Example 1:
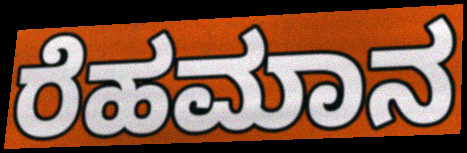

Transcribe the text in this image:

ರೆಹಮಾನ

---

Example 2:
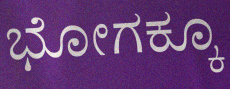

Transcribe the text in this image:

ಭೋಗಕ್ಕೂ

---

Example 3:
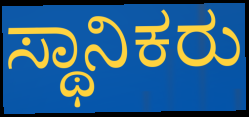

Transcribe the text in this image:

ಸ್ಥಾನಿಕರು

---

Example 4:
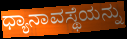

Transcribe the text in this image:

ಧ್ಯಾನಾವಸ್ಥೆಯನ್ನು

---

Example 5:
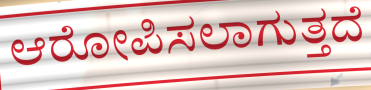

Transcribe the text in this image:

ಆರೋಪಿಸಲಾಗುತ್ತದೆ